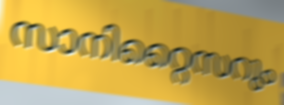
സാനിറ്റൈസറും